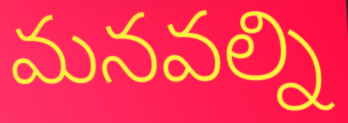
మనవల్ని